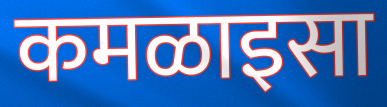
कमळाइसा